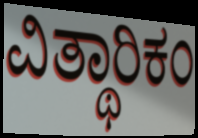
ವಿತ್ಥಾರಿಕಂ